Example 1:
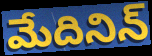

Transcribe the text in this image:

మేదినిన్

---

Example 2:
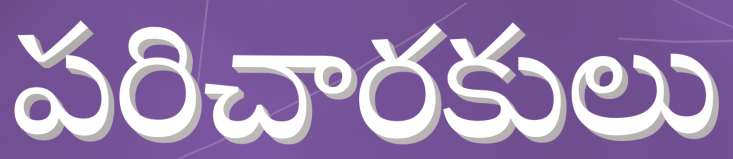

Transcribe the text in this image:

పరిచారకులు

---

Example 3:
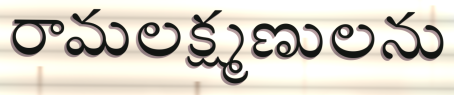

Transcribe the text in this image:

రామలక్ష్మణులను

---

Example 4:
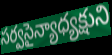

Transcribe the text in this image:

సర్వసైన్యాధ్యక్షుని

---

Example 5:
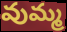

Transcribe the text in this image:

వుమ్మ